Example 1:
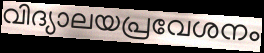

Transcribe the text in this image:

വിദ്യാലയപ്രവേശനം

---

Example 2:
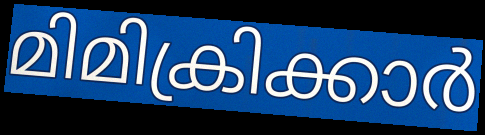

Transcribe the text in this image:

മിമിക്രിക്കാർ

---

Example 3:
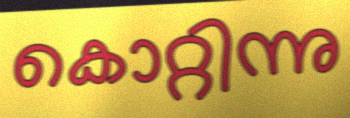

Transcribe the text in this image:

കൊറ്റിന്നു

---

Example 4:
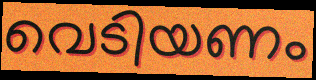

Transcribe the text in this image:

വെടിയണം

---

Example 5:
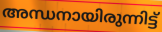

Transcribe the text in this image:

അന്ധനായിരുന്നിട്ട്